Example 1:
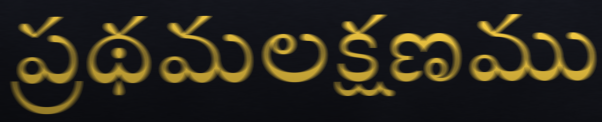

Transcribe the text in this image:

ప్రథమలక్షణము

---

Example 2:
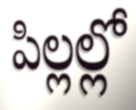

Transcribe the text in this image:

పిల్లల్లో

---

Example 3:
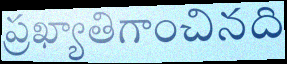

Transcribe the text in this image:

ప్రఖ్యాతిగాంచినది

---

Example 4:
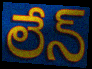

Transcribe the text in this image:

లేన్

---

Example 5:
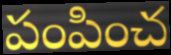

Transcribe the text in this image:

పంపించ